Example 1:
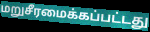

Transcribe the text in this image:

மறுசீரமைக்கப்பட்டது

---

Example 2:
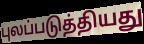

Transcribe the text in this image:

புலப்படுத்தியது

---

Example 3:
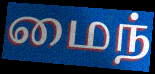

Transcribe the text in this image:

மைந்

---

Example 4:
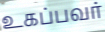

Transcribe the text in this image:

உகப்பவர்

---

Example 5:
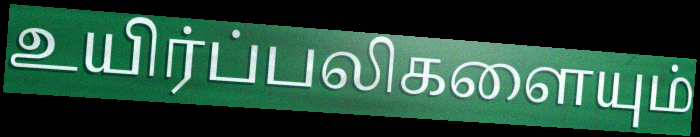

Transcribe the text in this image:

உயிர்ப்பலிகளையும்